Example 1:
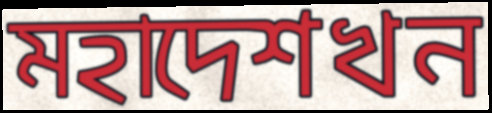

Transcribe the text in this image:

মহাদেশখন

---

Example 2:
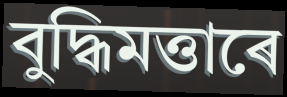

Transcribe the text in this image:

বুদ্ধিমত্তাৰে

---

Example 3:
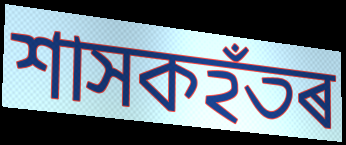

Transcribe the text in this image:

শাসকহঁতৰ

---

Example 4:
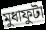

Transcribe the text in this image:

মুধাফুটা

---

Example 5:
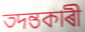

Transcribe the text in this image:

তদন্তকাৰী